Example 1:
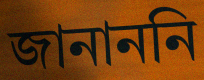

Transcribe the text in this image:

জানাননি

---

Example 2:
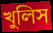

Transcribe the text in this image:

খুলিস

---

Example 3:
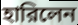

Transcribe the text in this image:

হারিলেন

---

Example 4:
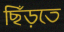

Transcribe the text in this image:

ছিঁড়তে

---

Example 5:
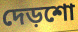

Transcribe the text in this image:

দেড়শো